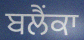
ਬਲੈਂਕਾ